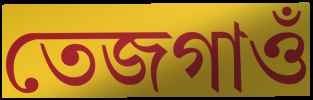
তেজগাওঁ